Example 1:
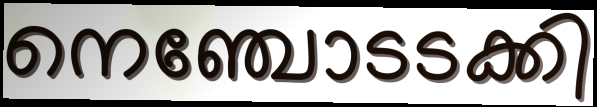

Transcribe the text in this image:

നെഞ്ചോടടക്കി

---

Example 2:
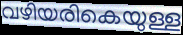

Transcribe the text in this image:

വഴിയരികെയുള്ള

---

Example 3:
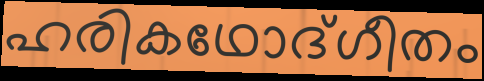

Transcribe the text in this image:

ഹരികഥോദ്ഗീതം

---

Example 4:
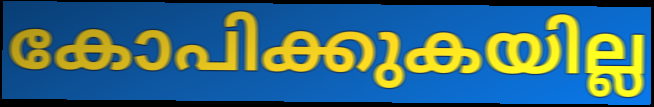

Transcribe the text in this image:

കോപിക്കുകയില്ല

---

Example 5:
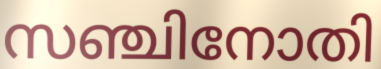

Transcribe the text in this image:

സഞ്ചിനോതി